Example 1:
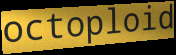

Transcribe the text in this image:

octoploid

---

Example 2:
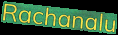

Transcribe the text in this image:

Rachanalu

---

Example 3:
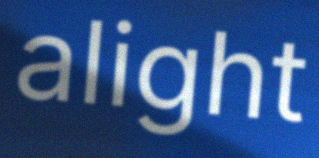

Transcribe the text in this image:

alight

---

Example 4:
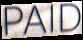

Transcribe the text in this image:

PAID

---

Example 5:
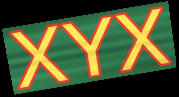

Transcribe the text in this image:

XYX